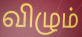
விழும்